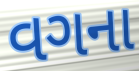
વગના